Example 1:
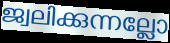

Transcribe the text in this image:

ജ്വലിക്കുന്നല്ലോ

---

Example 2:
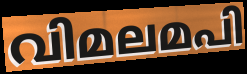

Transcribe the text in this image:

വിമലമപി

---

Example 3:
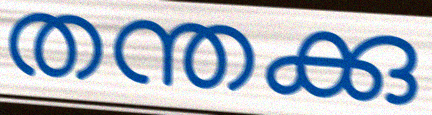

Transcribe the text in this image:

തന്തക്കു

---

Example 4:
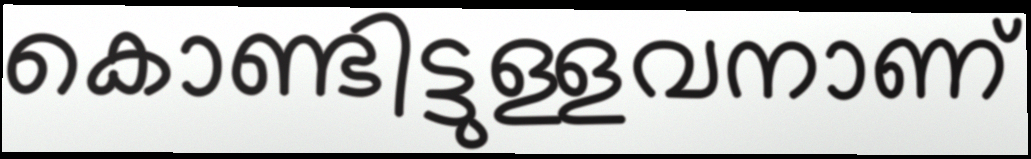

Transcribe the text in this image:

കൊണ്ടിട്ടുള്ളവനാണ്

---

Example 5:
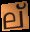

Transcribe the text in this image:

ല്